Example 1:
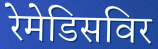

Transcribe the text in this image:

रेमेडिसविर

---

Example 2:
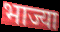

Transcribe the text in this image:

भाज्या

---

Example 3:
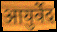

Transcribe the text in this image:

आयुर्वेद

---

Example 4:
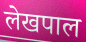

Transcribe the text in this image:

लेखपाल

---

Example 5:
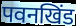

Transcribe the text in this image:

पवनखिंड